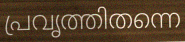
പ്രവൃത്തിതന്നെ